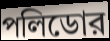
পলিডোর